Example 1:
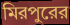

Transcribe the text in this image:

মিরপুরের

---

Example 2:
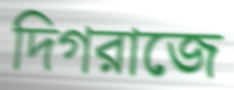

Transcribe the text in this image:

দিগরাজে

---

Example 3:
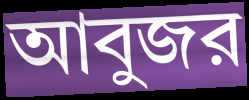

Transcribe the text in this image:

আবুজর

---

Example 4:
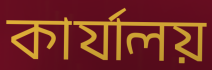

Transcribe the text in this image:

কার্যালয়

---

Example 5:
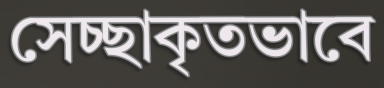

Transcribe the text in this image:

সেচ্ছাকৃতভাবে